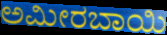
ಅಮೀರಬಾಯಿ